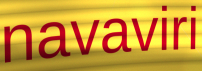
navaviri